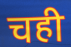
चही